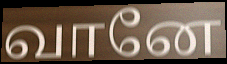
வானே